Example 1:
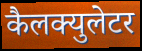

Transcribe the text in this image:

कैलक्युलेटर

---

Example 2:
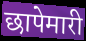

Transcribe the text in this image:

छापेमारी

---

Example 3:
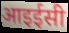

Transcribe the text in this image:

आइईसी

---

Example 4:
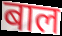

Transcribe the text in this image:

बाल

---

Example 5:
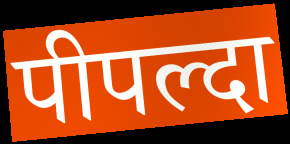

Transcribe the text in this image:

पीपल्दा